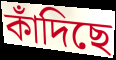
কাঁদিছে